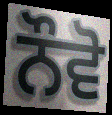
ਨੌਵੋ